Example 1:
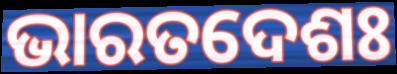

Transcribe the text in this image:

ଭାରତଦେଶଃ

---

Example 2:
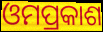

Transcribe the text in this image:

ଓମପ୍ରକାଶ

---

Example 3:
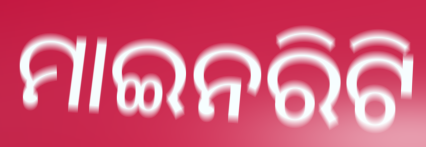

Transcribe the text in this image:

ମାଇନରିଟି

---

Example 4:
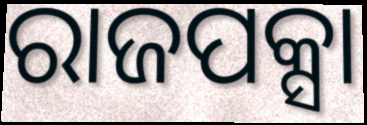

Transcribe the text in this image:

ରାଜପକ୍ସା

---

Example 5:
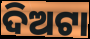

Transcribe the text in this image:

ଦିଅଟା